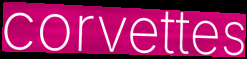
corvettes